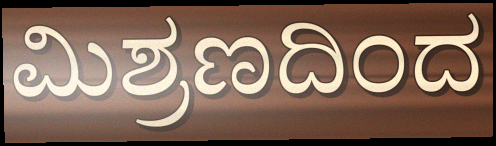
ಮಿಶ್ರಣದಿಂದ